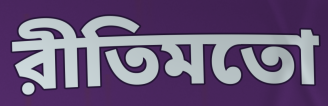
রীতিমতো